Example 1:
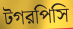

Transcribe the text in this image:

টগরপিসি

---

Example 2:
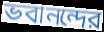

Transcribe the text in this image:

ভবানন্দের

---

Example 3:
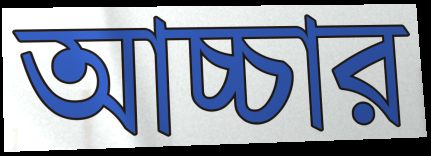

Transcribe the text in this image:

আচ্চার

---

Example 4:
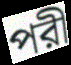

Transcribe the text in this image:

পরী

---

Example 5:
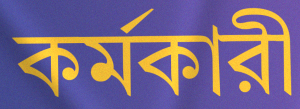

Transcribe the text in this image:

কর্মকারী